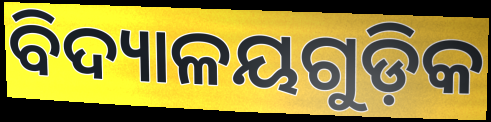
ବିଦ୍ୟାଳୟଗୁଡ଼ିକ